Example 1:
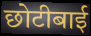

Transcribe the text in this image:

छोटीबाई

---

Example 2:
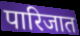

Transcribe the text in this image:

पारिजात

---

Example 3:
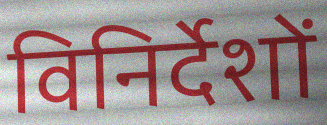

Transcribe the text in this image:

विनिर्देशों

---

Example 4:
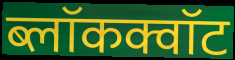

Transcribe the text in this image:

ब्लॉकक्वॉट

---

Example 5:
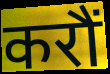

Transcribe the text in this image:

करौं